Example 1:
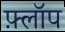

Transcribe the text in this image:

फ़्लॉप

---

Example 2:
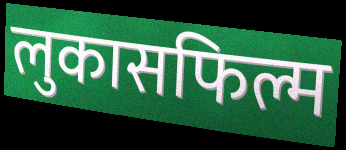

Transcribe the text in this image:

लुकासफिल्म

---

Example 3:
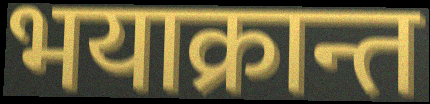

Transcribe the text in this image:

भयाक्रान्त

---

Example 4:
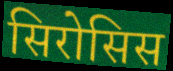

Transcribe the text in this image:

सिरोसिस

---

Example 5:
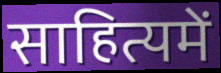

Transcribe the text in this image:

साहित्यमें